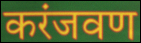
करंजवण